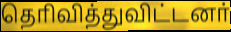
தெரிவித்துவிட்டனர்